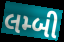
લમ્બી